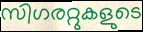
സിഗരറ്റുകളുടെ